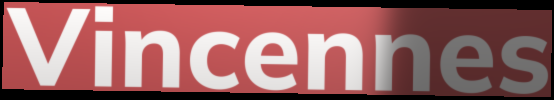
Vincennes